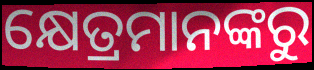
କ୍ଷେତ୍ରମାନଙ୍କରୁ